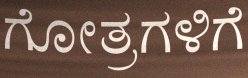
ಗೋತ್ರಗಳಿಗೆ